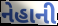
નેહાની